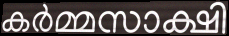
കർമ്മസാക്ഷി